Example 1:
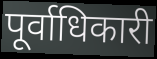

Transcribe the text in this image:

पूर्वाधिकारी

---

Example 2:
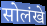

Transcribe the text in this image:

सोलंखे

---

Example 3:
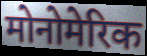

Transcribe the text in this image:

मोनोमेरिक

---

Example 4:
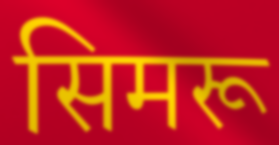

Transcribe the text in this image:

सिमरू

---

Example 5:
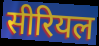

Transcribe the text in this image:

सीरियल